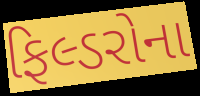
ફિલ્ડરોના